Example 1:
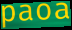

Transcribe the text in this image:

paoa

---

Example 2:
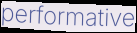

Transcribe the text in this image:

performative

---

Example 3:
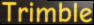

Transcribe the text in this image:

Trimble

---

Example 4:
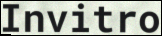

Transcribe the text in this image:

Invitro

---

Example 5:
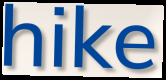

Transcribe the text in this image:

hike